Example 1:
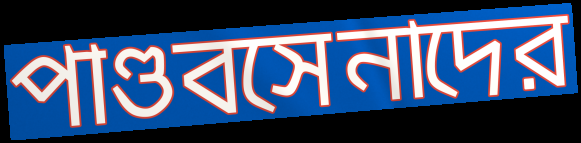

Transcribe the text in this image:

পাণ্ডবসেনাদের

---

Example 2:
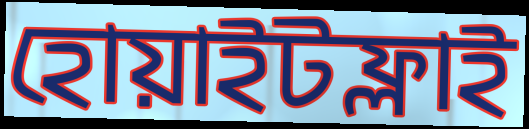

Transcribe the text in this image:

হোয়াইটফ্লাই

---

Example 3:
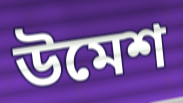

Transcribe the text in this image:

উমেশ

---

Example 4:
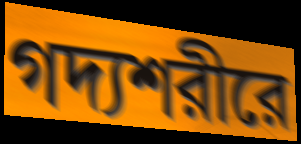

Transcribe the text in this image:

গদ্যশরীরে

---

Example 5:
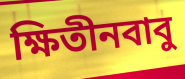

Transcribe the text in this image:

ক্ষিতীনবাবু